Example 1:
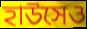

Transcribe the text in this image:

হাউসেও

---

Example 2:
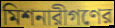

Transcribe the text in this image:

মিশনারীগণের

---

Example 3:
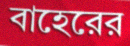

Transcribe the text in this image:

বাহেরের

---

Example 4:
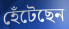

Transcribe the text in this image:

হেঁটেছেন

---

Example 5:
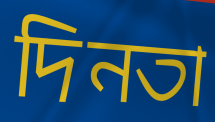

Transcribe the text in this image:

দিনতা